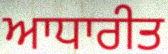
ਆਧਾਰੀਤ